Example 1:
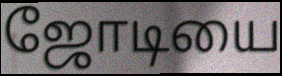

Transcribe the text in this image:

ஜோடியை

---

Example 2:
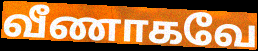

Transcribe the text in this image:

வீணாகவே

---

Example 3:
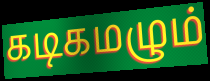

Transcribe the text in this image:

கடிகமழும்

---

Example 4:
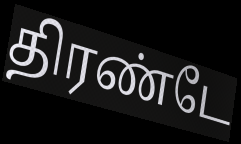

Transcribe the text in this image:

திரண்டே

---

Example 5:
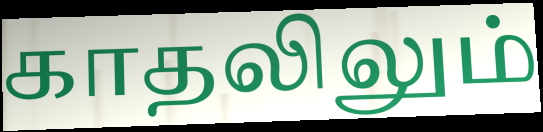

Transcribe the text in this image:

காதலிலும்